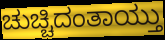
ಚುಚ್ಚಿದಂತಾಯ್ತು